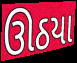
ઊઠયા